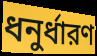
ধনুর্ধারণ